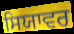
ਸਿਯਾਵਰ